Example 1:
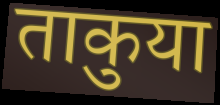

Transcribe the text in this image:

ताकुया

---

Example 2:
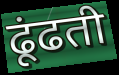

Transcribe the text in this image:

ढूंढती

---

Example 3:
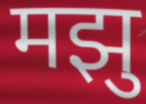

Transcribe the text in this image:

मझु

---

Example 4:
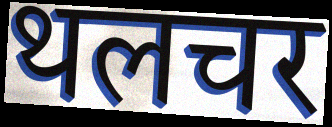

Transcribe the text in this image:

थलचर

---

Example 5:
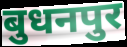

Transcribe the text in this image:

बुधनपुर